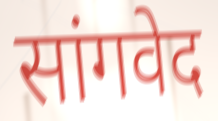
सांगवेद